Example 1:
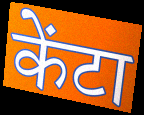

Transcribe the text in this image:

केंटा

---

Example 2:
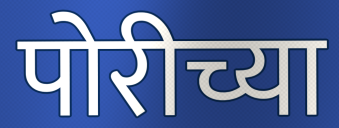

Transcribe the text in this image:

पोरीच्या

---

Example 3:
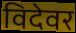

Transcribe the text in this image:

विदेवर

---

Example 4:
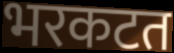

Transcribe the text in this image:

भरकटत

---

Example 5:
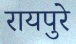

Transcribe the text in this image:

रायपुरे